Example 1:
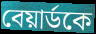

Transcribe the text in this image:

বেয়ার্ডকে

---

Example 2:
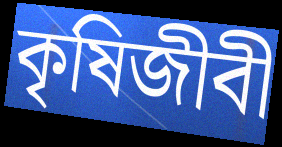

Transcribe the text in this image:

কৃষিজীবী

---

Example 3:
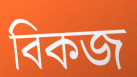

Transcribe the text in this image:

বিকজ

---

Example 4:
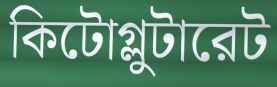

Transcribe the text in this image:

কিটোগ্লুটারেট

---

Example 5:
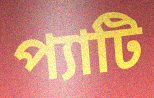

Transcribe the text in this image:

প্যাটি